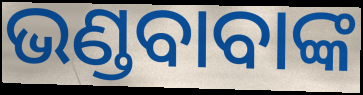
ଭଣ୍ଡବାବାଙ୍କ